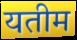
यतीम